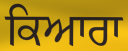
ਕਿਆਰਾ